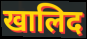
खालिद